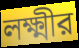
লক্ষ্মীর